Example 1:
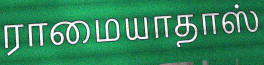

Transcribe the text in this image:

ராமையாதாஸ்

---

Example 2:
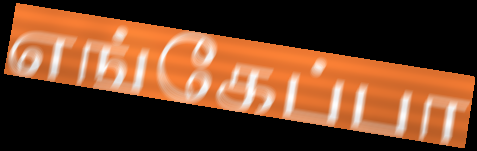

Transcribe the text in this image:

எங்கேப்பா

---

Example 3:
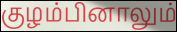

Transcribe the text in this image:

குழம்பினாலும்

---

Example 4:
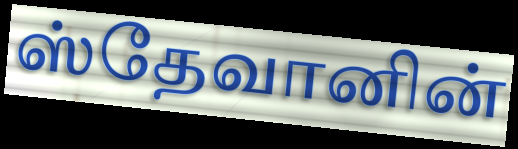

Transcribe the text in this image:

ஸ்தேவானின்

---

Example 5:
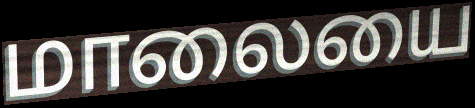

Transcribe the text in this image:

மாலையை